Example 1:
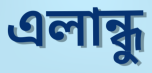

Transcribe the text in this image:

এলান্ধু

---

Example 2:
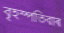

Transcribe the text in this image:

বৃহস্পতিবাৰ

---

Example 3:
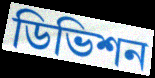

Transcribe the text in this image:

ডিভিশন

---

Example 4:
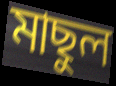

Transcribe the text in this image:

মাছুল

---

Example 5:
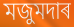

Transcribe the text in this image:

মজুমদাৰ